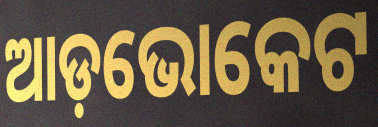
ଆଡ଼ଭୋକେଟ